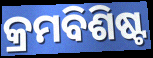
କ୍ରମବିଶିଷ୍ଟ